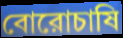
বোরোচাষি